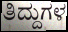
ತಿದ್ದುಗಳ